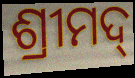
ଶ୍ରୀମଦ୍